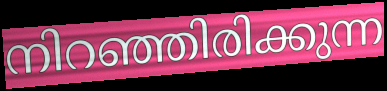
നിറഞ്ഞിരിക്കുന്ന